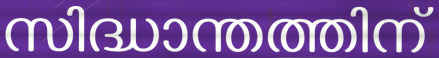
സിദ്ധാന്തത്തിന്